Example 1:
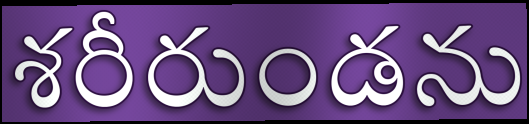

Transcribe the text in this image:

శరీరుండను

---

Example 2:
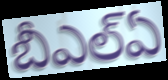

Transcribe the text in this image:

బీఎల్ఏ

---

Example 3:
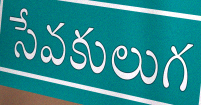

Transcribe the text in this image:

సేవకులుగ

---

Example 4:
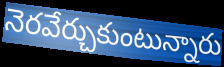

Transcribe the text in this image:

నెరవేర్చుకుంటున్నారు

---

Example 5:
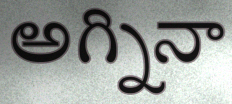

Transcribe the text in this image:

అగ్నినా